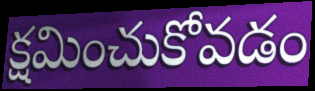
క్షమించుకోవడం